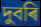
দুবৰি